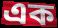
এক